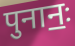
पुना॒नः